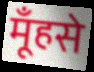
मूँहसे